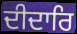
ਦੀਦਾਰਿ